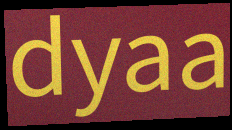
dyaa